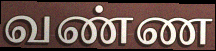
வண்ண